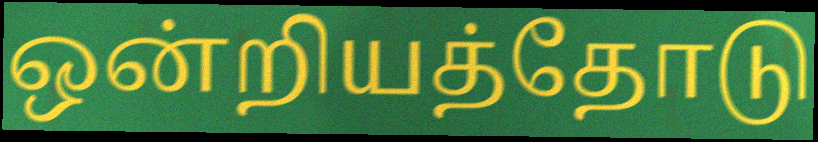
ஒன்றியத்தோடு